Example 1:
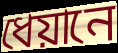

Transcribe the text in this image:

ধেয়ানে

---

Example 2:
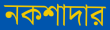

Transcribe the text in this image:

নকশাদার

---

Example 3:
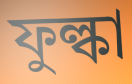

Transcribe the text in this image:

ফুল্কা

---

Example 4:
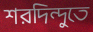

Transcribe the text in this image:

শরদিন্দুতে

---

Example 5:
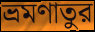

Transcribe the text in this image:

ভ্রমণাতুর